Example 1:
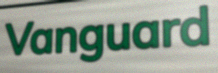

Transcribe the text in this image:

Vanguard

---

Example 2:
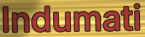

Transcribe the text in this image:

Indumati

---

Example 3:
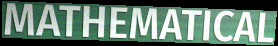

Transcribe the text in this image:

MATHEMATICAL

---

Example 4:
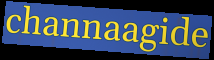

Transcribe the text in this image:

channaagide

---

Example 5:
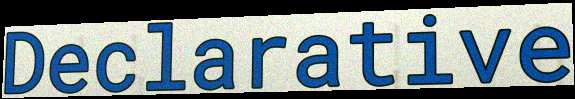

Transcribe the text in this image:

Declarative